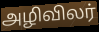
அழிவிலர்